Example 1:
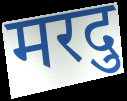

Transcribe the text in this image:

मरदु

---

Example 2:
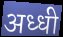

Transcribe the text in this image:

अध्धी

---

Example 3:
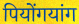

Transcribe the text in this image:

पियोंगयांग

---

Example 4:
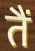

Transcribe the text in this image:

तैं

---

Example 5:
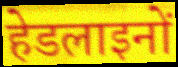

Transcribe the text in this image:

हेडलाइनों